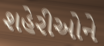
શહેરીઓને